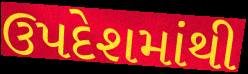
ઉપદેશમાંથી